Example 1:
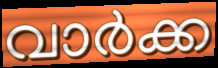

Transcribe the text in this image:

വാർക്ക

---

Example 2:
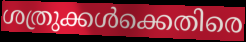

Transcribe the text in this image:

ശത്രുക്കൾക്കെതിരെ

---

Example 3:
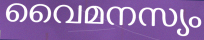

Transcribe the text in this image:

വൈമനസ്യം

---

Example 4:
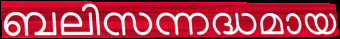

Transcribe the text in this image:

ബലിസന്നദ്ധമായ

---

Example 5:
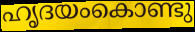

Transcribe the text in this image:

ഹൃദയംകൊണ്ടു